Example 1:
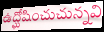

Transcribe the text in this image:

ఉద్ఘోషించుచున్నవి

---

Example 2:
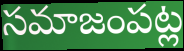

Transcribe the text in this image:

సమాజంపట్ల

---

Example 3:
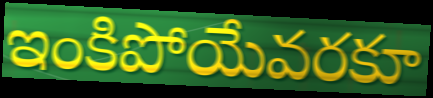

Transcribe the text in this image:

ఇంకిపోయేవరకూ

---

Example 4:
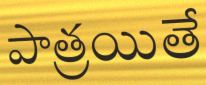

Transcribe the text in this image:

పాత్రయితే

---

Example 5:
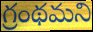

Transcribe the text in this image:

గ్రంథమని